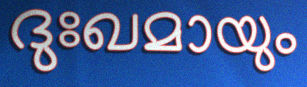
ദുഃഖമായും